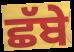
ਛੱਬੇ